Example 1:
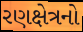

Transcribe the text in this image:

રણક્ષેત્રનો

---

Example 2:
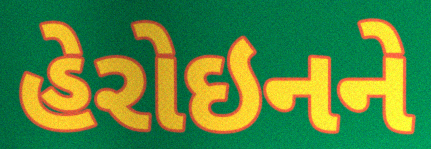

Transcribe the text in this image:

હેરોઇનને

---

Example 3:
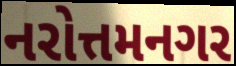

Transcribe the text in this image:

નરોત્તમનગર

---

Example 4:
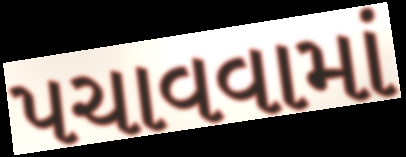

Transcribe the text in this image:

પચાવવામાં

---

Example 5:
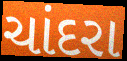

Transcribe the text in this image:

ચાંદરા